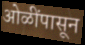
ओळींपासून